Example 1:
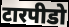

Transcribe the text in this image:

टारपीडो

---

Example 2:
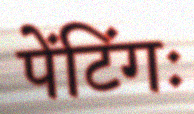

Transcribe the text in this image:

पेंटिंगः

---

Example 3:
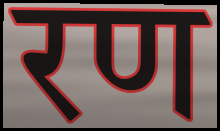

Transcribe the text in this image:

रण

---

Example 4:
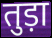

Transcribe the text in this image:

तुड़ा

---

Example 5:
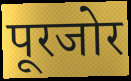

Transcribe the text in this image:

पूरजोर